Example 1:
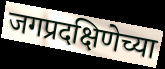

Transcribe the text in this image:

जगप्रदक्षिणेच्या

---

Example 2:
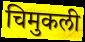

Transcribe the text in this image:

चिमुकली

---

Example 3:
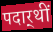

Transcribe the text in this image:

पदार्थीं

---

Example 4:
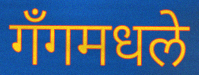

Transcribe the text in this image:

गँगमधले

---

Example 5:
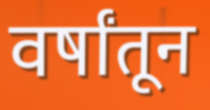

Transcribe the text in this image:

वर्षांतून